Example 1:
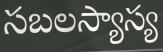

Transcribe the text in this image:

సబలస్యాస్య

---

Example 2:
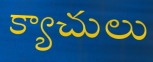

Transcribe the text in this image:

క్యాచులు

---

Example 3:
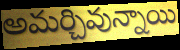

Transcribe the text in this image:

అమర్చివున్నాయి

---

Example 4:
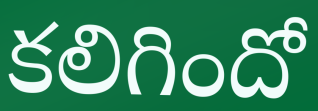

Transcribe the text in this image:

కలిగిందో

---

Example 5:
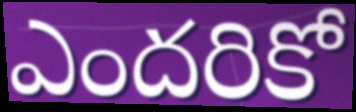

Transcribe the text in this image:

ఎందరికో